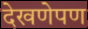
देखणेपण